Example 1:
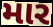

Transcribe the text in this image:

માર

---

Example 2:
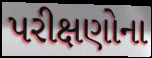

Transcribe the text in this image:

પરીક્ષણોના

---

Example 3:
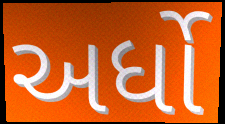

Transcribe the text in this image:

અર્ધો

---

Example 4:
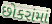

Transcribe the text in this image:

છોકરાંમાં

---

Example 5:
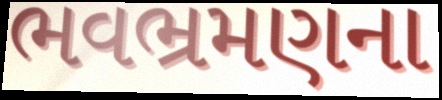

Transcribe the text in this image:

ભવભ્રમણના